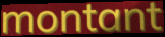
montant